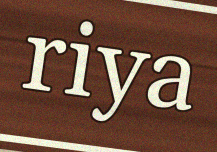
riya